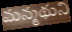
మన్మథుని